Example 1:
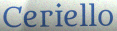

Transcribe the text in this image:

Ceriello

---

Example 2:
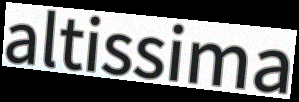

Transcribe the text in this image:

altissima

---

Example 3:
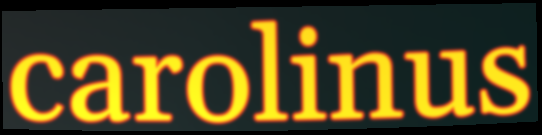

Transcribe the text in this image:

carolinus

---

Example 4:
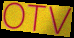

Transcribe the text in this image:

OTV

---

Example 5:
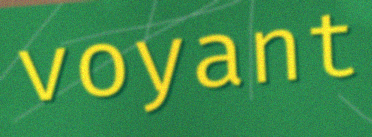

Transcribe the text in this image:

voyant